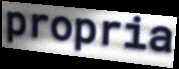
propria